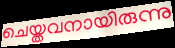
ചെയ്തവനായിരുന്നു